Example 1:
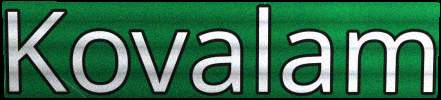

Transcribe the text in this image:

Kovalam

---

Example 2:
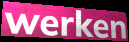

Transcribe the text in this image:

werken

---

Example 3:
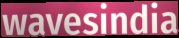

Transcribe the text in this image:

wavesindia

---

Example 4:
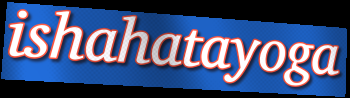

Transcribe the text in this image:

ishahatayoga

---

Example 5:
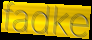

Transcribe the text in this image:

fadke